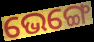
ଭେଙ୍ଗେ